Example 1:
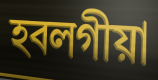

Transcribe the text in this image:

হবলগীয়া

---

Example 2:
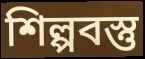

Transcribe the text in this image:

শিল্পবস্তু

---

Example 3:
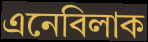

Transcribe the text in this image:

এনেবিলাক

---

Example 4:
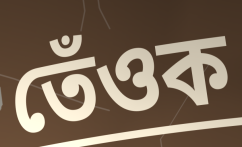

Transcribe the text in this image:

তেঁওক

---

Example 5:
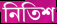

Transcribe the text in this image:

নিতিশ